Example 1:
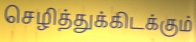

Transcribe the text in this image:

செழித்துக்கிடக்கும்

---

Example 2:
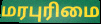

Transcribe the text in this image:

மரபுரிமை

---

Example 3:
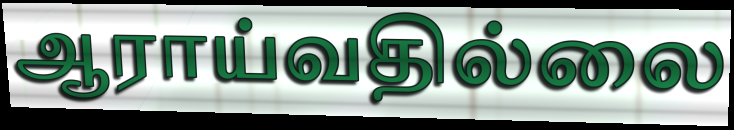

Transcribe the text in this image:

ஆராய்வதில்லை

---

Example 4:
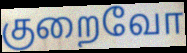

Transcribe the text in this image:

குறைவோ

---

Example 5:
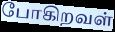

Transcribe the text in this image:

போகிறவள்